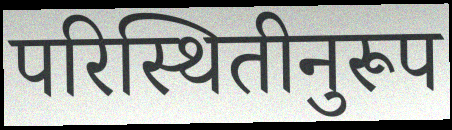
परिस्थितीनुरूप